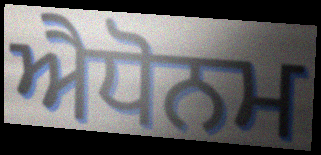
ਐਧੋਨਮ